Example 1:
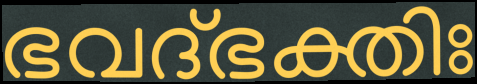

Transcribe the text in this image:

ഭവദ്ഭക്തിഃ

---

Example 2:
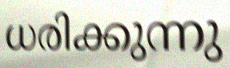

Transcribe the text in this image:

ധരിക്കുന്നു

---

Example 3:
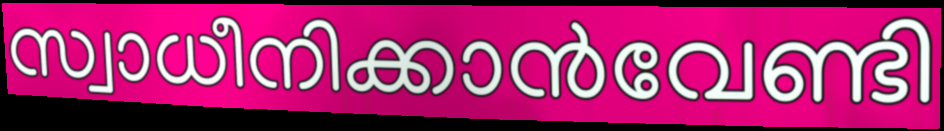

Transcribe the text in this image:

സ്വാധീനിക്കാൻവേണ്ടി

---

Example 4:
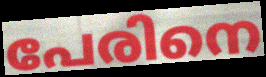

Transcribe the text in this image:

പേരിനെ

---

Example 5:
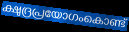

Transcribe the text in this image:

ക്ഷുദ്രപ്രയോഗംകൊണ്ട്